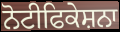
ਨੋਟੀਫਿਕੇਸ਼ਨਾ